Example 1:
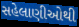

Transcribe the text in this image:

સહેલાણીઓથી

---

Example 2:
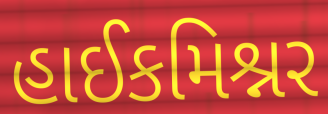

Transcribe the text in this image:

હાઈકમિશ્નર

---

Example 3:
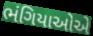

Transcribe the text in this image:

ભંગિયાઓએ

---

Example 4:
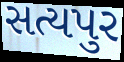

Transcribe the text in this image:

સત્યપુર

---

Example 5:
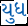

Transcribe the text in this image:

યુધ